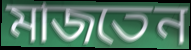
মাজতেন